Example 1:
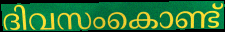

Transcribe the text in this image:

ദിവസംകൊണ്ട്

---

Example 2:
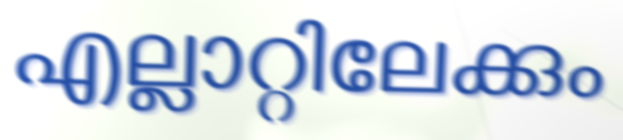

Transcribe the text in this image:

എല്ലാറ്റിലേക്കും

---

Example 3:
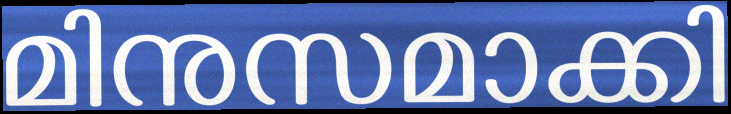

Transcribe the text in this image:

മിനുസമാക്കി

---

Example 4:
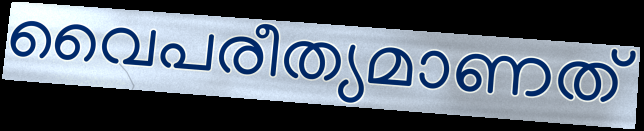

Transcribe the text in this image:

വൈപരീത്യമാണത്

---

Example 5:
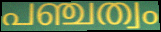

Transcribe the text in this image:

പഞ്ചത്വം